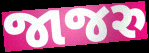
જાજરુ